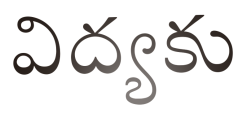
విద్యకు